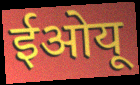
ईओयू